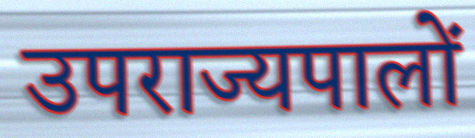
उपराज्यपालों